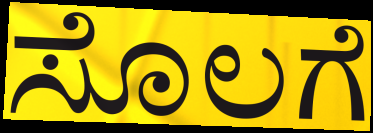
ಸೊಲಗೆ